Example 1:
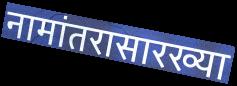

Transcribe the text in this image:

नामांतरासारख्या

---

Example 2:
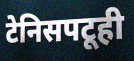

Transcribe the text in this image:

टेनिसपटूही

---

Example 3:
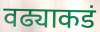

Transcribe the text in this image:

वढ्याकडं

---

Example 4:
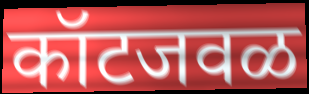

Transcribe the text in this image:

कॉटजवळ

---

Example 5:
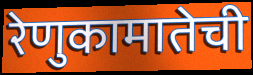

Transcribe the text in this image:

रेणुकामातेची